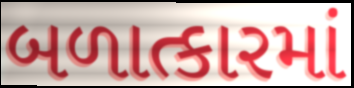
બળાત્કારમાં